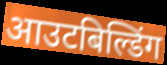
आउटबिल्डिंग